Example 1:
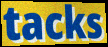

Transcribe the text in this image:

tacks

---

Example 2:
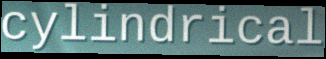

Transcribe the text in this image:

cylindrical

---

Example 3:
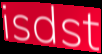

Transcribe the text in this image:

isdst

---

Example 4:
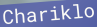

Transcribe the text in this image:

Chariklo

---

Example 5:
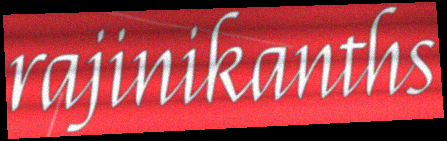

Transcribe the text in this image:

rajinikanths